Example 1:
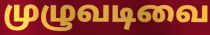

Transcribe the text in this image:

முழுவடிவை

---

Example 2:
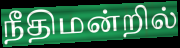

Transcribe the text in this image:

நீதிமன்றில்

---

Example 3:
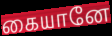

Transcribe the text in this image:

கையானே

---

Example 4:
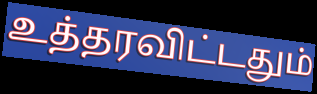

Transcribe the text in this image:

உத்தரவிட்டதும்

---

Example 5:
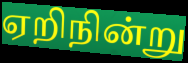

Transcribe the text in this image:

ஏறிநின்று